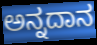
ಅನ್ನದಾನ